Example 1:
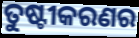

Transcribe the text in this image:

ତୁଷ୍ଟୀକରଣର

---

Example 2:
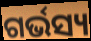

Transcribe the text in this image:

ଗର୍ଭସ୍ୟ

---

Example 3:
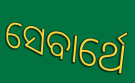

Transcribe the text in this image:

ସେବାର୍ଥେ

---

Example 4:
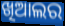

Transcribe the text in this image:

ଖିଆଲର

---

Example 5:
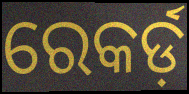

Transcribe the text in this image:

ରେକର୍ଡ଼